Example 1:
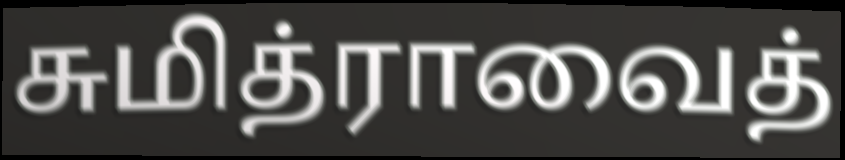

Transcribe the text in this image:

சுமித்ராவைத்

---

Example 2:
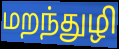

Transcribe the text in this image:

மறந்துழி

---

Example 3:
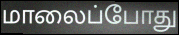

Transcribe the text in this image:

மாலைப்போது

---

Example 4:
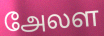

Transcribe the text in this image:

அேலள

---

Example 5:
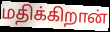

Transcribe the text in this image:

மதிக்கிறான்